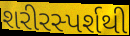
શરીરસ્પર્શથી